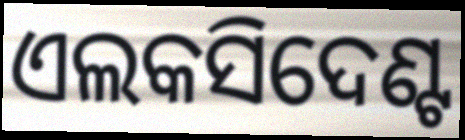
ଏଲକସିଦେଣ୍ଟ